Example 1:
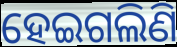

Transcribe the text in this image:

ହେଇଗଲିଣି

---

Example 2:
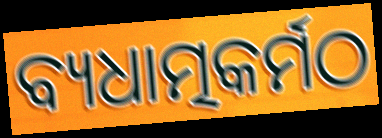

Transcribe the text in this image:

ବ୍ୟଧାତ୍ମକର୍ମଠ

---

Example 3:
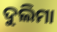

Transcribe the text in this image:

ଦୁଲିମା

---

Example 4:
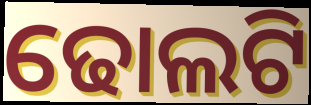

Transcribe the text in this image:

ଢୋଲଟି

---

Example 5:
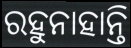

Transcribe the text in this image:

ରହୁନାହାନ୍ତି